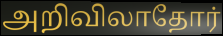
அறிவிலாதோர்